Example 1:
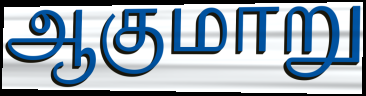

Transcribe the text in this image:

ஆகுமாறு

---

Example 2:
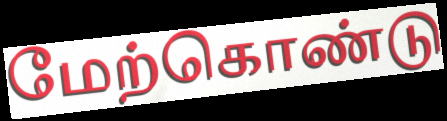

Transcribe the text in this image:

மேற்கொண்டு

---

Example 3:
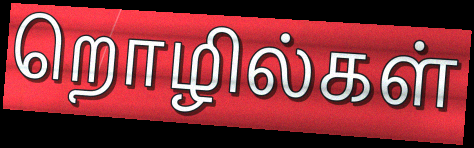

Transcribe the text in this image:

றொழில்கள்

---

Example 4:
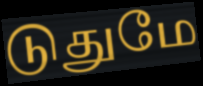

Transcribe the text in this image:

டுதுமே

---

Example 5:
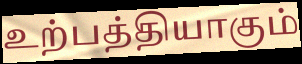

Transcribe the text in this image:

உற்பத்தியாகும்